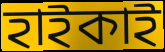
হাইকাই